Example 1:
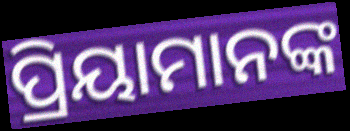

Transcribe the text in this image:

ପ୍ରିୟାମାନଙ୍କ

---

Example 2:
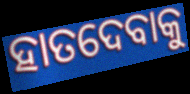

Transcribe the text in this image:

ହାତଦେବାକୁ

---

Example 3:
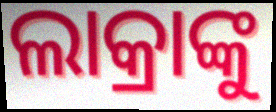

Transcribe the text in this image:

ଲାକ୍ରାଙ୍କୁ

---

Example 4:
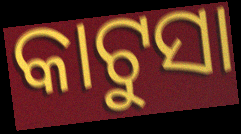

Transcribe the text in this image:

କାଟୁସା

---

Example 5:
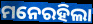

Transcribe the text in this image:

ମନେରହିଲା